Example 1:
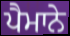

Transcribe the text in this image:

ਪੈਮਾਨੇ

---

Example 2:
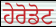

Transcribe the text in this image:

ਹੇਰੋਡੋਟ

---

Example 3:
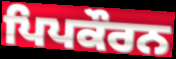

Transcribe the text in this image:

ਪਿਪਕੌਰਨ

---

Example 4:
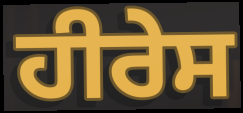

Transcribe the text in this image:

ਹੀਰੇਸ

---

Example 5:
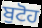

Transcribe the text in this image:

ਬੁਟੋਹ